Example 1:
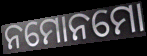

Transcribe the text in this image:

ନମୋନମୋ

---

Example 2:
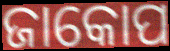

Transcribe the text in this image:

ଜାକୋପ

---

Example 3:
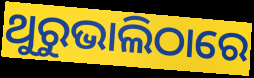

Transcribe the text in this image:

ଥୁରୁଭାଲିଠାରେ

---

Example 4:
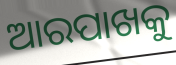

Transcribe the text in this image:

ଆରପାଖକୁ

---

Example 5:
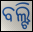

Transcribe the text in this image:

ବଲ୍ଟି